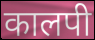
कालपी